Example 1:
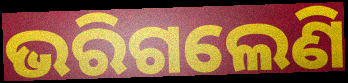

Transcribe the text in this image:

ଭରିଗଲେଣି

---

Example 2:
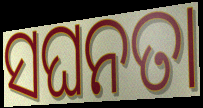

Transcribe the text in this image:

ସଘନତା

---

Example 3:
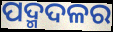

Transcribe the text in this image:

ପଦ୍ମଦଳର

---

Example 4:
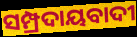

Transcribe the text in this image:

ସମ୍ପ୍ରଦାୟବାଦୀ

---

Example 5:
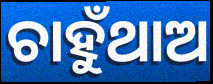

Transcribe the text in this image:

ଚାହୁଁଥାଅ